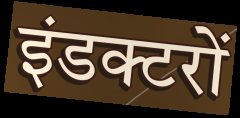
इंडक्टरों